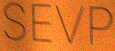
SEVP